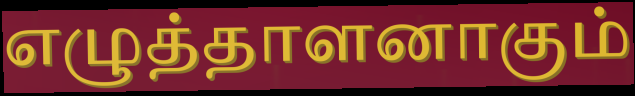
எழுத்தாளனாகும்